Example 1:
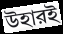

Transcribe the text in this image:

উহারই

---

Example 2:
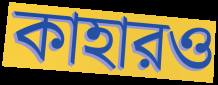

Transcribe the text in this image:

কাহারও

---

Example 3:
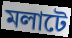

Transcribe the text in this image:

মলাটে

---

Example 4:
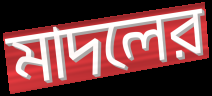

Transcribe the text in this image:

মাদলের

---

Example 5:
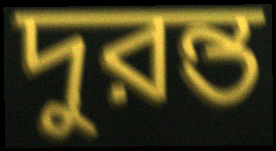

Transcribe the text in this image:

দুরন্ত